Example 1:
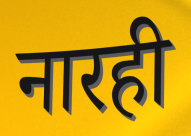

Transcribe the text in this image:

नारही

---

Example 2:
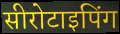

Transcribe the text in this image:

सीरोटाइपिंग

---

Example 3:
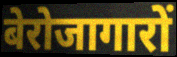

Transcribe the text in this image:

बेरोजागारों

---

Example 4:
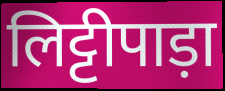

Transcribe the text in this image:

लिट्टीपाड़ा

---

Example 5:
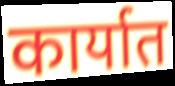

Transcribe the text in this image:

कार्यात